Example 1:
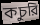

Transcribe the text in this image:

কচুরি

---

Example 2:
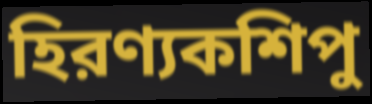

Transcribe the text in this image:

হিরণ্যকশিপু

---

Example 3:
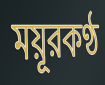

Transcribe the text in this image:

ময়ূরকণ্ঠ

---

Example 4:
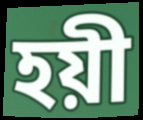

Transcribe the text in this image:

হয়ী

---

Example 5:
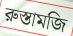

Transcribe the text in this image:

রুস্তামজি